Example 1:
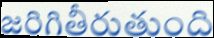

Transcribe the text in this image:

జరిగితీరుతుంది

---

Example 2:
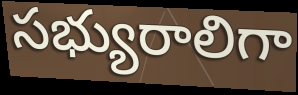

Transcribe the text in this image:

సభ్యురాలిగా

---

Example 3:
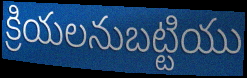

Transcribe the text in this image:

క్రియలనుబట్టియు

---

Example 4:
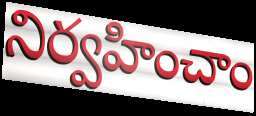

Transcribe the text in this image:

నిర్వహించాం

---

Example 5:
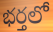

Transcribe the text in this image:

భర్తలో